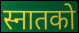
स्नातको